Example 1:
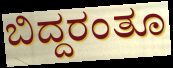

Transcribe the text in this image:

ಬಿದ್ದರಂತೂ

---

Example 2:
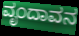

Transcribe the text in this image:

ವೃಂದಾವನ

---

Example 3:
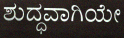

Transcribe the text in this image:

ಶುದ್ಧವಾಗಿಯೇ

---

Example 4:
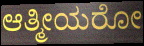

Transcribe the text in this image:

ಆತ್ಮೀಯರೋ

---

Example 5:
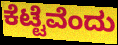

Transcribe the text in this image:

ಕೆಟ್ಟೆವೆಂದು